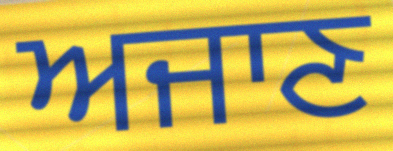
ਅਜਾਣ